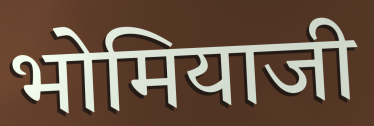
भोमियाजी